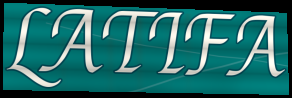
LATIFA